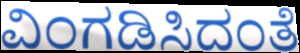
ವಿಂಗಡಿಸಿದಂತೆ